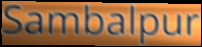
Sambalpur